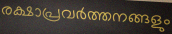
രക്ഷാപ്രവർത്തനങ്ങളും